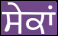
ਸੇਕਾਂ